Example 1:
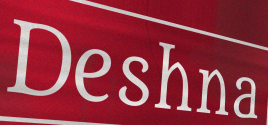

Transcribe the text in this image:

Deshna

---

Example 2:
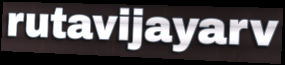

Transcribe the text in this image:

rutavijayarv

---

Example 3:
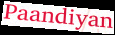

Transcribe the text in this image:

Paandiyan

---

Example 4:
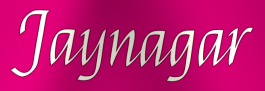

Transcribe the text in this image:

Jaynagar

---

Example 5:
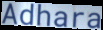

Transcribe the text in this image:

Adhara